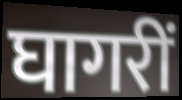
घागरीं